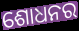
ଶୋଧନର